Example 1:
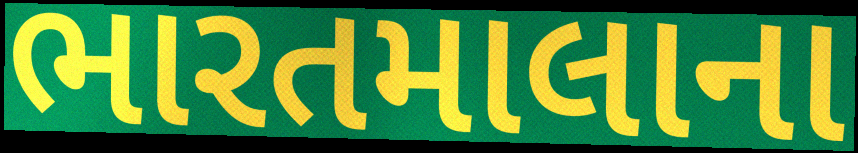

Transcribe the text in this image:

ભારતમાલાના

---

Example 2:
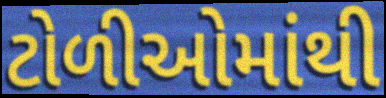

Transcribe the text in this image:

ટોળીઓમાંથી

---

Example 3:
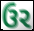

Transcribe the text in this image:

ઉર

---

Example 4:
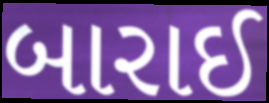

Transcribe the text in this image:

બારાઈ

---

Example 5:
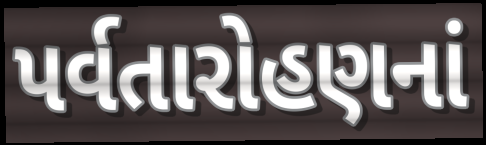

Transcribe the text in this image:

પર્વતારોહણનાં